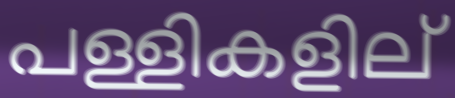
പള്ളികളില്